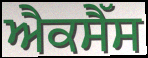
ਐਕਸੈੱਸ